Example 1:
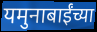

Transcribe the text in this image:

यमुनाबाईंच्या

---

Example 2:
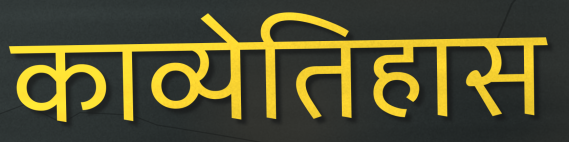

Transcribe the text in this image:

काव्येतिहास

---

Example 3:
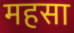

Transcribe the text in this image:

महसा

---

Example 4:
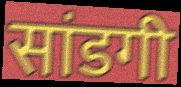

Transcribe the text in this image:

सांडगी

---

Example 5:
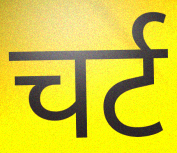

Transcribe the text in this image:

चर्ट